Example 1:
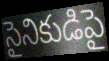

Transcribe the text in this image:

సైనికుడిపై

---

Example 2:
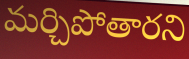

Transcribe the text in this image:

మర్చిపోతారని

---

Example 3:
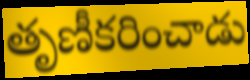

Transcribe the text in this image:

తృణీకరించాడు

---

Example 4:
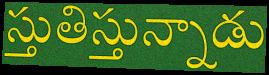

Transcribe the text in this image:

స్తుతిస్తున్నాడు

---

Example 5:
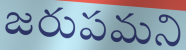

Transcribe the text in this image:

జరుపమని